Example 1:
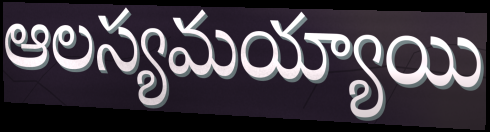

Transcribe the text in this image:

ఆలస్యమయ్యాయి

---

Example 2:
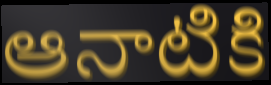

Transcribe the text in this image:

ఆనాటికి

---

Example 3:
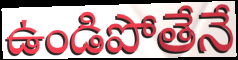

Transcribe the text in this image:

ఉండిపోతేనే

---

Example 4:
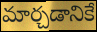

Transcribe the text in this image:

మార్చడానికే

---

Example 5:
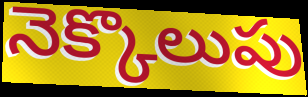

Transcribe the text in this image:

నెక్కొలుపు